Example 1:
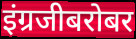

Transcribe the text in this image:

इंग्रजीबरोबर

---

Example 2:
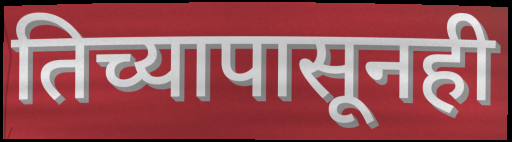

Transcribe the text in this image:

तिच्यापासूनही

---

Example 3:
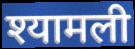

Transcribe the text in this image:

श्यामली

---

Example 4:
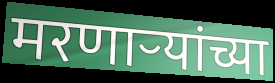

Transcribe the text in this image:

मरणाऱ्यांच्या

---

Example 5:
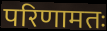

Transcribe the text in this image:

परिणामतः